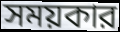
সময়কার